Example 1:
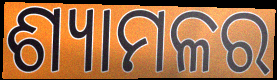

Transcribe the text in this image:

ଶ୍ୟାମଳର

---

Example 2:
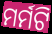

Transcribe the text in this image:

ମର୍ମଟି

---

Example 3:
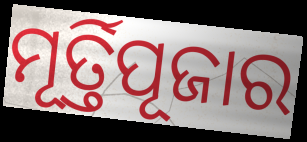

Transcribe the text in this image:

ମୂର୍ତ୍ତିପୂଜାର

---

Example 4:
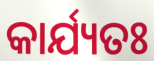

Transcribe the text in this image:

କାର୍ଯ୍ୟତଃ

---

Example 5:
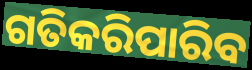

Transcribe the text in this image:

ଗତିକରିପାରିବ